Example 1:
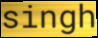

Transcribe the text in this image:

singh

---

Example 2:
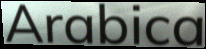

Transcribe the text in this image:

Arabica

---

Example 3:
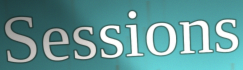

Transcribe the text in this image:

Sessions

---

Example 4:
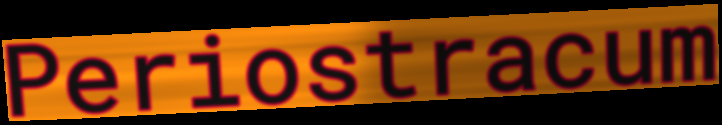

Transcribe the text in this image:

Periostracum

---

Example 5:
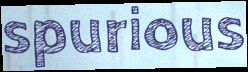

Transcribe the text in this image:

spurious